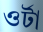
ওর্টা